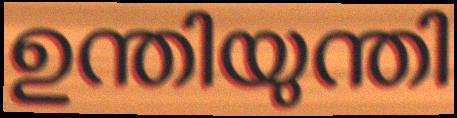
ഉന്തിയുന്തി